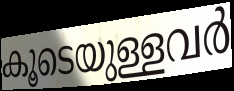
കൂടെയുള്ളവർ